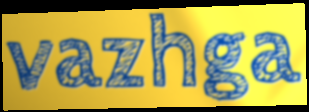
vazhga